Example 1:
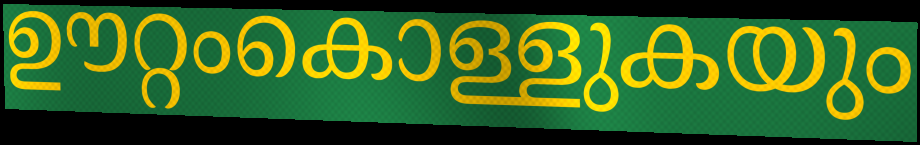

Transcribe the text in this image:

ഊറ്റംകൊള്ളുകയും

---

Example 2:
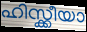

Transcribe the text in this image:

ഹിസ്ക്കീയാ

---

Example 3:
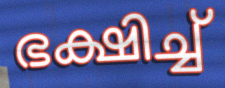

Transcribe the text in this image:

ഭക്ഷിച്ച്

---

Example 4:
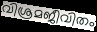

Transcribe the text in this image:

വിശ്രമജീവിതം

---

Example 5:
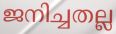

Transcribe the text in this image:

ജനിച്ചതല്ല